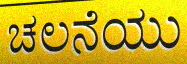
ಚಲನೆಯು